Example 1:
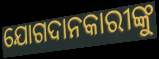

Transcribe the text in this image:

ଯୋଗଦାନକାରୀଙ୍କୁ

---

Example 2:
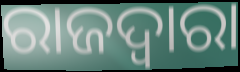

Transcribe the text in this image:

ରାଜଦ୍ୱାରା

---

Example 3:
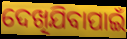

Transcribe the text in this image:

ଦେଖିଯିବାପାଇଁ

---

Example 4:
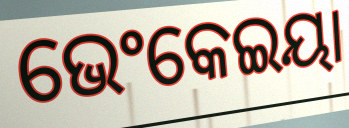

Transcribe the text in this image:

ଭେଂକେଇୟା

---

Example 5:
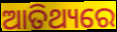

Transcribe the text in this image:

ଆତିଥ୍ୟରେ